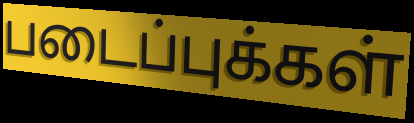
படைப்புக்கள்